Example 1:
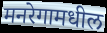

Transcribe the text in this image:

मनरेगामधील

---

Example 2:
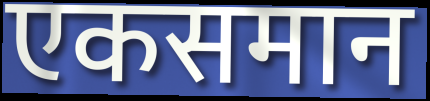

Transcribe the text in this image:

एकसमान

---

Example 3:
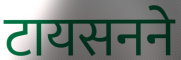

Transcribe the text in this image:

टायसनने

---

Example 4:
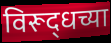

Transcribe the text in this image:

विरूद्धच्या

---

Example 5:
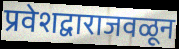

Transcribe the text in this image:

प्रवेशद्वाराजवळून